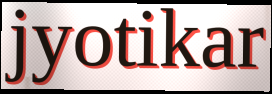
jyotikar